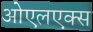
ओएलएक्स